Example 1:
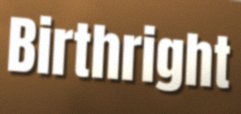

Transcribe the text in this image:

Birthright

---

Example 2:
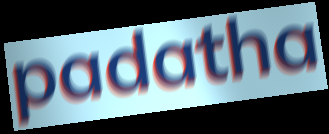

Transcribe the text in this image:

padatha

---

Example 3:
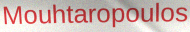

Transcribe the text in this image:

Mouhtaropoulos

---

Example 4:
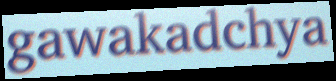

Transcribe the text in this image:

gawakadchya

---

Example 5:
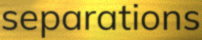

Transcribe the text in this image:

separations